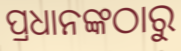
ପ୍ରଧାନଙ୍କଠାରୁ